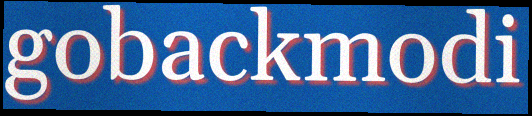
gobackmodi